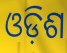
ଓଡ଼ିଶ